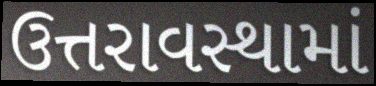
ઉત્તરાવસ્થામાં